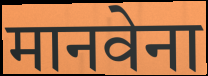
मानवेना